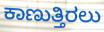
ಕಾಣುತ್ತಿರಲು